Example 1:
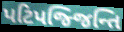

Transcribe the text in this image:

પટિપજ્જિન્તિ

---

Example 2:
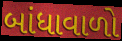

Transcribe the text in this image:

બાંધાવાળો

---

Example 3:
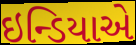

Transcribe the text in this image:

ઇન્ડિયાએ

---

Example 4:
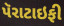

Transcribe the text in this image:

પૅરાટાઇફી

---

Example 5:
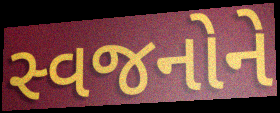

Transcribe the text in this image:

સ્વજનોને